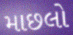
માછલો